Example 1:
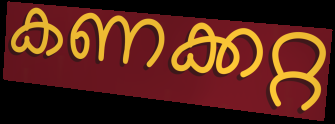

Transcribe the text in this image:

കണക്കറ്റ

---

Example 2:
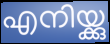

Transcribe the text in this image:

എനിയ്ക്കു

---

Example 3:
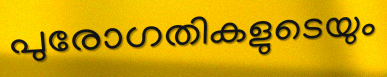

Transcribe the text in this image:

പുരോഗതികളുടെയും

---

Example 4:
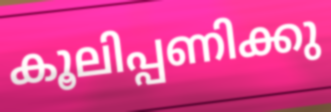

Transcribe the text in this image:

കൂലിപ്പണിക്കു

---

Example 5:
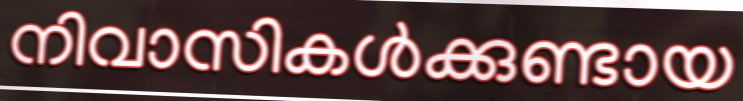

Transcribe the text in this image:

നിവാസികൾക്കുണ്ടായ